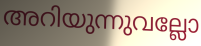
അറിയുന്നുവല്ലോ